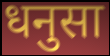
धनुसा